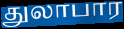
துலாபார